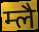
म्लै